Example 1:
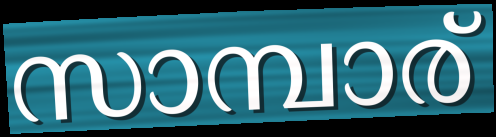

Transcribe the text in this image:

സാമ്പാര്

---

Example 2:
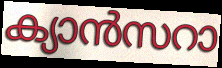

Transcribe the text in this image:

ക്യാൻസറാ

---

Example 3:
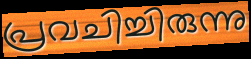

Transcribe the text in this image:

പ്രവചിച്ചിരുന്നു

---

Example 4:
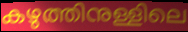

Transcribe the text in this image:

കഴുത്തിനുള്ളിലെ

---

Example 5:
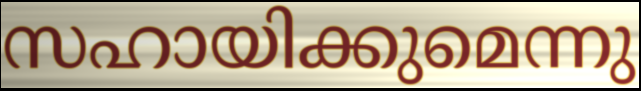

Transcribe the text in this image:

സഹായിക്കുമെന്നു